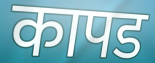
कापड